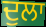
ਦੁਲਾ